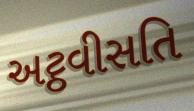
અટ્ઠવીસતિ